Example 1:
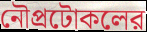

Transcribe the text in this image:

নৌপ্রটোকলের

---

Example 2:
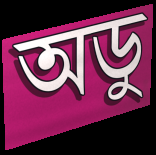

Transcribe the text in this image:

অডু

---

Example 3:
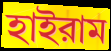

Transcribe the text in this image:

হাইরাম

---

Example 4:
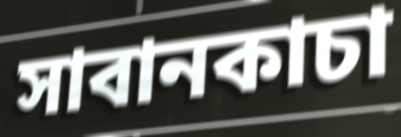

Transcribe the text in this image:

সাবানকাচা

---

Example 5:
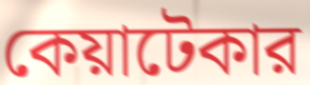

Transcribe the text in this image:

কেয়াটেকার